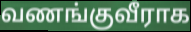
வணங்குவீராக